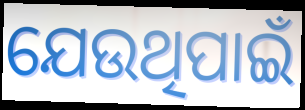
ଯେଉଥିପାଇଁ